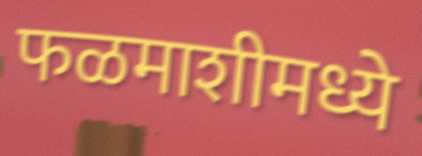
फळमाशीमध्ये